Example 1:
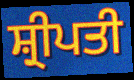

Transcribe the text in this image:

ਸ਼੍ਰੀਪਤੀ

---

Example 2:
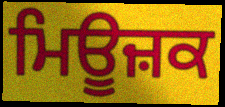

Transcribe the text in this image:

ਮਿਊਜ਼ਕ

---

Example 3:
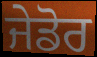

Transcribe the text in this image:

ਜੇਡੋਰ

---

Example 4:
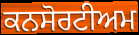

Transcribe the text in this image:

ਕਨਸੋਰਟੀਅਮ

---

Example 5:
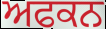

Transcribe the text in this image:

ਅਫਕਨ